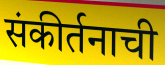
संकीर्तनाची